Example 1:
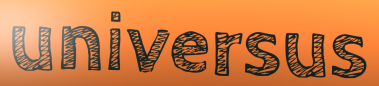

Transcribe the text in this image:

universus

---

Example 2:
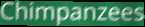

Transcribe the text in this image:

Chimpanzees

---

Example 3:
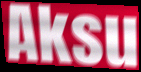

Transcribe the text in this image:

Aksu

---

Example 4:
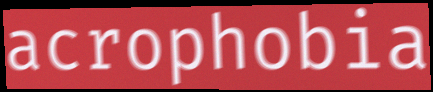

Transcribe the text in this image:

acrophobia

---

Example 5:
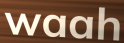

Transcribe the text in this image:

waah